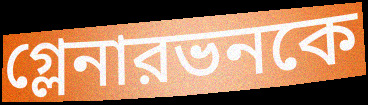
গ্লেনারভনকে